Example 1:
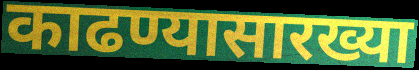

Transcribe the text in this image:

काढण्यासारख्या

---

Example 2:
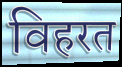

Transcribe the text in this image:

विहरत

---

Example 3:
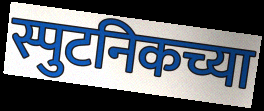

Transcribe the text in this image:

स्पुटनिकच्या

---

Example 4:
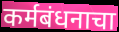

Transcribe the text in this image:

कर्मबंधनाचा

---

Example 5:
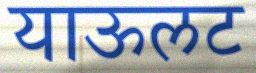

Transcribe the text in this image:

याऊलट